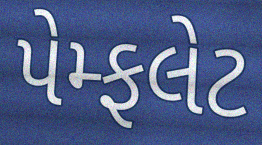
પેમ્ફલેટ